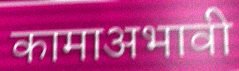
कामाअभावी